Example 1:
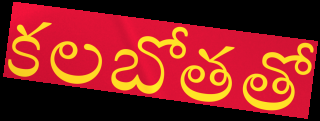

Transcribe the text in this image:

కలబోతతో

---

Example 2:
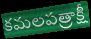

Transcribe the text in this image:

కమలపత్రాక్షీ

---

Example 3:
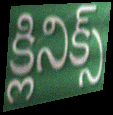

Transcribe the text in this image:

క్లినిక్స్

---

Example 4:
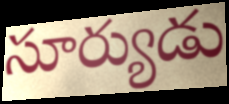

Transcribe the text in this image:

సూర్యుడు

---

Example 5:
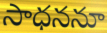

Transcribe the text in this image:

సాధననూ